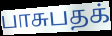
பாசுபதக்